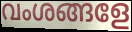
വംശങ്ങളേ